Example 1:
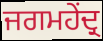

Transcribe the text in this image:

ਜਗਮਹੇਂਦ੍ਰ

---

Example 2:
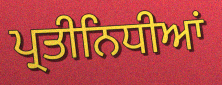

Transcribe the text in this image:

ਪ੍ਰਤੀਨਿਧੀਆਂ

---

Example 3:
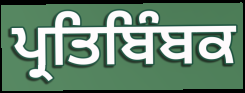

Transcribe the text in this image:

ਪ੍ਰਤਿਬਿੰਬਕ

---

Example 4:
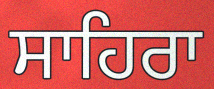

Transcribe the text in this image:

ਸਾਹਿਰਾ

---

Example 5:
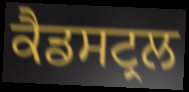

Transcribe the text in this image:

ਕੈਡਸਟ੍ਰਲ